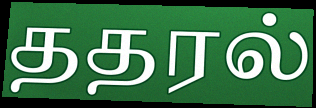
ததரல்